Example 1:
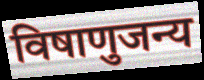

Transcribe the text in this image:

विषाणुजन्य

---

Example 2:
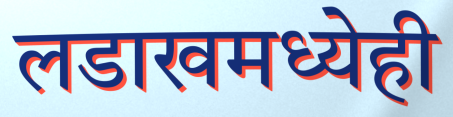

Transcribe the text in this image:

लडाखमध्येही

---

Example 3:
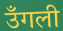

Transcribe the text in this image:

उँगली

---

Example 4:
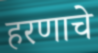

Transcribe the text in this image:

हरणाचे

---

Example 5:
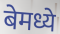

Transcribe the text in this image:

बेमध्ये